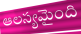
ఆలస్యమైంది